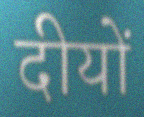
दीयों